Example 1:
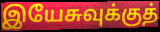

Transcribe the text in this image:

இயேசுவுக்குத்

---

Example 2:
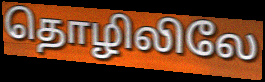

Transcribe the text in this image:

தொழிலிலே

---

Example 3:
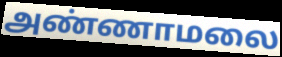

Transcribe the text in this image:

அண்ணாமலை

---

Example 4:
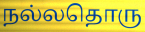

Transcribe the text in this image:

நல்லதொரு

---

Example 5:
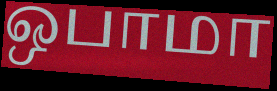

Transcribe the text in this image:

ஒபாமா